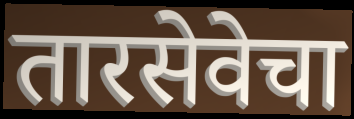
तारसेवेचा